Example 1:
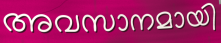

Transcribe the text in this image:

അവസാനമായി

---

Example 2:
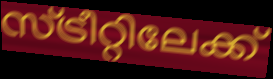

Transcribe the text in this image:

സ്ട്രീറ്റിലേക്ക്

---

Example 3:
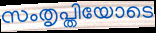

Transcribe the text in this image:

സംതൃപ്തിയോടെ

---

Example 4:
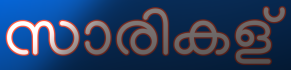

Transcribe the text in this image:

സാരികള്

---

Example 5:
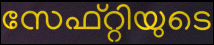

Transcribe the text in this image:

സേഫ്റ്റിയുടെ